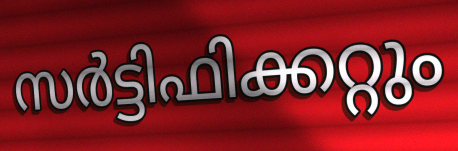
സർട്ടിഫിക്കറ്റും